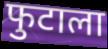
फुटाला